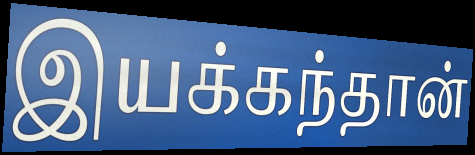
இயக்கந்தான்